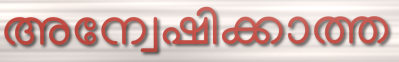
അന്വേഷിക്കാത്ത